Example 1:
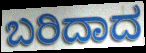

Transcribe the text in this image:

ಬರಿದಾದ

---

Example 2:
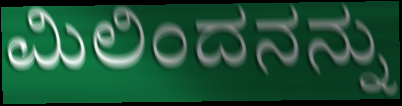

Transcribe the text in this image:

ಮಿಲಿಂದನನ್ನು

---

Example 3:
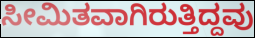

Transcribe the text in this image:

ಸೀಮಿತವಾಗಿರುತ್ತಿದ್ದವು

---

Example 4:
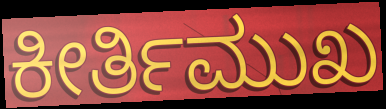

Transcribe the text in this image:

ಕೀರ್ತಿಮುಖ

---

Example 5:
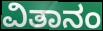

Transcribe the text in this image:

ವಿತಾನಂ